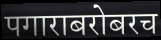
पगाराबरोबरच